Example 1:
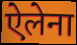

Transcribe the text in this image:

ऐलेना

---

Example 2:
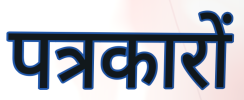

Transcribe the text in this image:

पत्रकारों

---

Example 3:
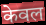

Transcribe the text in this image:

केवल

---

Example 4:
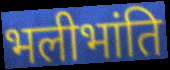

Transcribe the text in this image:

भलीभांति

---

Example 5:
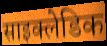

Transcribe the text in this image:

साइक्लेडिक